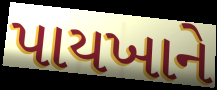
પાયખાને